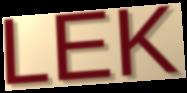
LEK